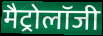
मैट्रोलॉजी